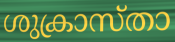
ശുക്രാസ്താ